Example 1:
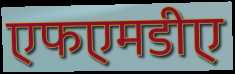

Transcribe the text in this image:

एफएमडीए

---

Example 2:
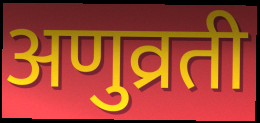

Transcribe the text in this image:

अणुव्रती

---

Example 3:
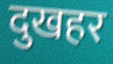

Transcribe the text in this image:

दुखहर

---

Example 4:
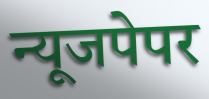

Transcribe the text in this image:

न्यूजपेपर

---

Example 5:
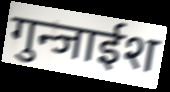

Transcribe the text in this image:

गुन्जाईश